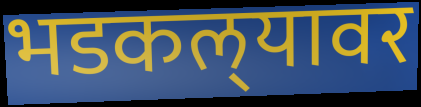
भडकल्यावर